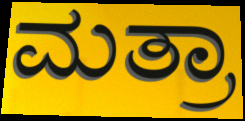
ಮತ್ರಾ